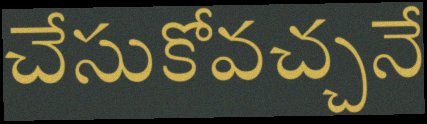
చేసుకోవచ్చనే